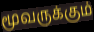
மூவருக்கும்